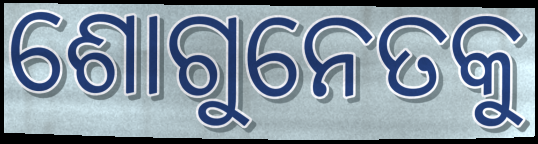
ଶୋଗୁନେତକୁ